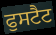
ਫੁਸਟੈਟ